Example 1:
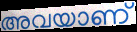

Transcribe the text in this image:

അവയാണ്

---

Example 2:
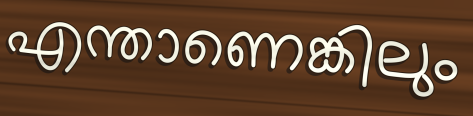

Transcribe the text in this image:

എന്താണെങ്കിലും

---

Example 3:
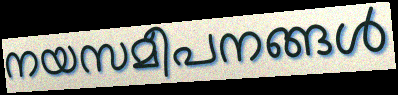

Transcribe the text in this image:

നയസമീപനങ്ങൾ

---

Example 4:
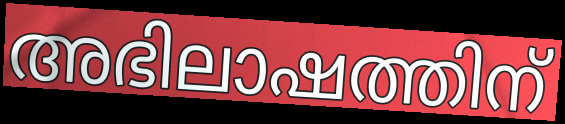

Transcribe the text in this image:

അഭിലാഷത്തിന്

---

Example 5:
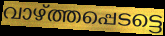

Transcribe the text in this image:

വാഴ്ത്തപ്പെടട്ടെ